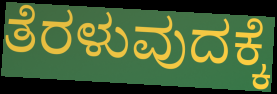
ತೆರಳುವುದಕ್ಕೆ